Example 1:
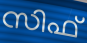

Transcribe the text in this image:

സിഫ്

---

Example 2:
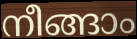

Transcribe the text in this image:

നീങ്ങാം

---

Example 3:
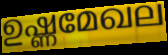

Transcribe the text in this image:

ഉഷ്ണമേഖല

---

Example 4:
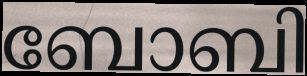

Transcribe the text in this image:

ബോബി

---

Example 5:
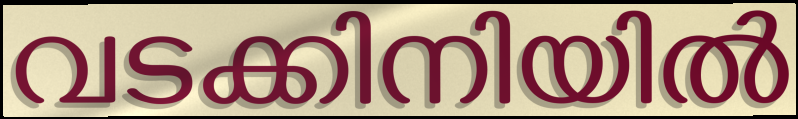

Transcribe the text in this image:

വടക്കിനിയിൽ